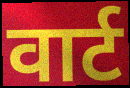
वार्ट